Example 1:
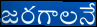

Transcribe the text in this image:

జరగాలనే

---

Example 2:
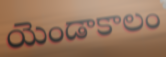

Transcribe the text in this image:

యెండాకాలం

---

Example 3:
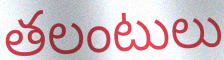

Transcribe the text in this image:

తలంటులు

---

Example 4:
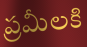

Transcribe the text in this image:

ప్రమీలకి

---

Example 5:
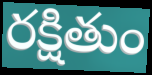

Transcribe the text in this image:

రక్షితుం